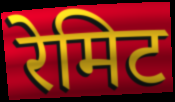
रेमिट